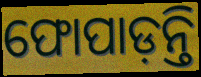
ଫୋପାଡ଼ନ୍ତି